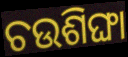
ଚଉଶିଙ୍ଘା